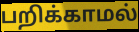
பறிக்காமல்